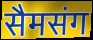
सैमसंग